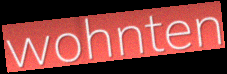
wohnten